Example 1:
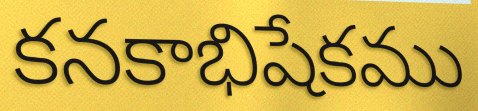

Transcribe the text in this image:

కనకాభిషేకము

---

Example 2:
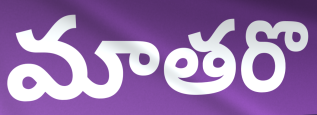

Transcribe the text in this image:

మాతరొ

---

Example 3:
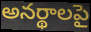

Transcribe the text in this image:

అనర్థాలపై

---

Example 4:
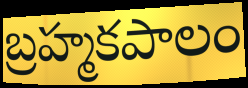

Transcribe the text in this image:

బ్రహ్మకపాలం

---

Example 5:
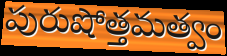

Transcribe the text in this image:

పురుషోత్తమత్వం